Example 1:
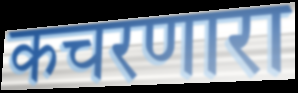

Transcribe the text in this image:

कचरणारा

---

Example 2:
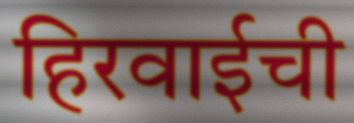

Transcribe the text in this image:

हिरवाईची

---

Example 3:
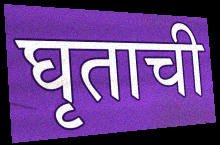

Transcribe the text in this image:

घृताची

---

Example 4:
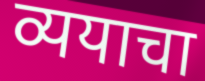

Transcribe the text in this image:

व्ययाचा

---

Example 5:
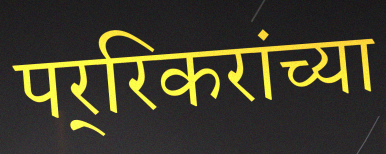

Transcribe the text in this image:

पर्रिकरांच्या